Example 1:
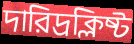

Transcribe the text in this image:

দারিদ্রক্লিষ্ট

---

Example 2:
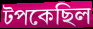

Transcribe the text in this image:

টপকেছিল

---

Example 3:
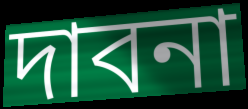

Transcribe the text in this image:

দাবনা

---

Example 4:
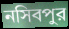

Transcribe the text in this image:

নসিবপুর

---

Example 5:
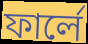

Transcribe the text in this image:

ফার্লে